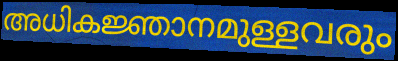
അധികജ്ഞാനമുള്ളവരും